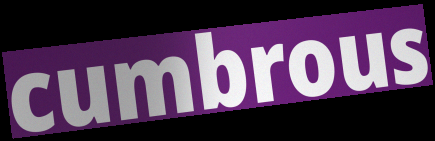
cumbrous